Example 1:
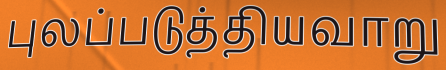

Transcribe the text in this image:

புலப்படுத்தியவாறு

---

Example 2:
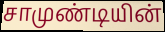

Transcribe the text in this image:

சாமுண்டியின்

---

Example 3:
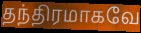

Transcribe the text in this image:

தந்திரமாகவே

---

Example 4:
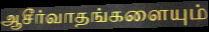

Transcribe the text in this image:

ஆசீர்வாதங்களையும்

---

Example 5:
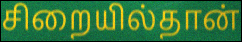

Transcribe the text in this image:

சிறையில்தான்